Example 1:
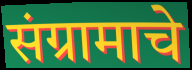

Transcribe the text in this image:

संग्रामाचे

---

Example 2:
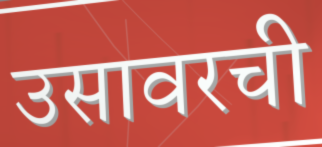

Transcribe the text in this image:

उसावरची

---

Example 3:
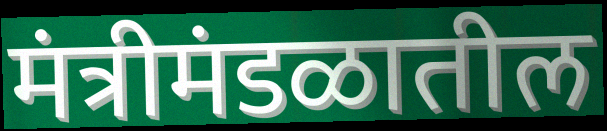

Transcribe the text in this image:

मंत्रीमंडळातील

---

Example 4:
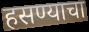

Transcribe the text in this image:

हसण्याचा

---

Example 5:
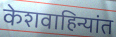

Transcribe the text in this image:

केशवाहिन्यांत